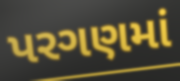
પરગણમાં